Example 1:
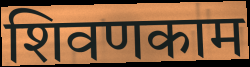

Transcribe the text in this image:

शिवणकाम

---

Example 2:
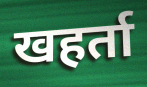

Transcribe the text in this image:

खहर्ता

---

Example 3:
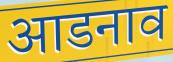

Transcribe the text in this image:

आडनाव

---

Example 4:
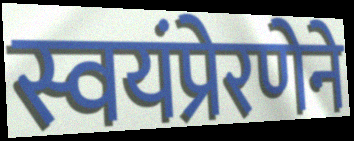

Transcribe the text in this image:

स्वयंप्रेरणेने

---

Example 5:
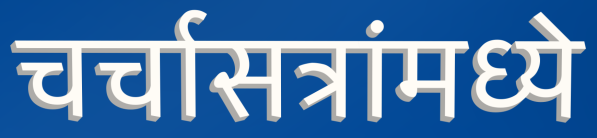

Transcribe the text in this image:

चर्चासत्रांमध्ये